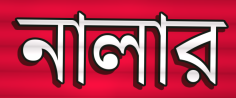
নালার